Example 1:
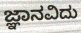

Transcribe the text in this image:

ಜ್ಞಾನವಿದು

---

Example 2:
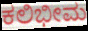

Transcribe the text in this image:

ಕಲಿಭೀಮ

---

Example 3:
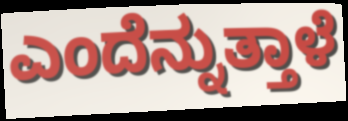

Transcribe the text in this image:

ಎಂದೆನ್ನುತ್ತಾಳೆ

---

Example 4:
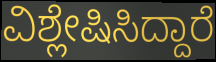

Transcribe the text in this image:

ವಿಶ್ಲೇಷಿಸಿದ್ದಾರೆ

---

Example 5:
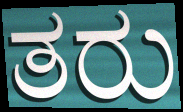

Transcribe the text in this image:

ತರು